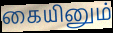
கையினும்